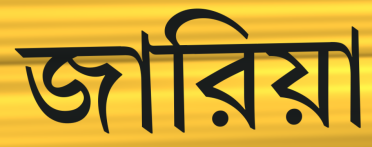
জারিয়া